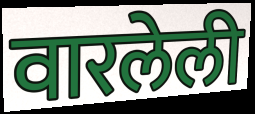
वारलेली